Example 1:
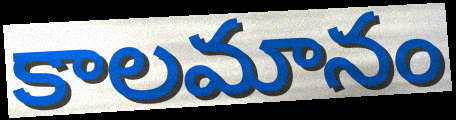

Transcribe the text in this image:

కాలమానం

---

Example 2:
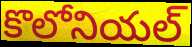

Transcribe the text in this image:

కొలోనియల్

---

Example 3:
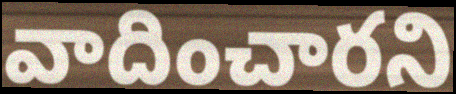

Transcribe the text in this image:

వాదించారని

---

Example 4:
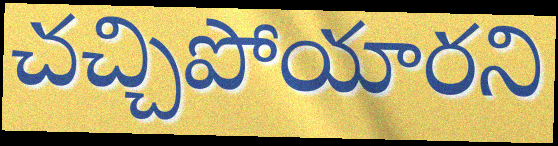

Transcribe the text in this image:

చచ్చిపోయారని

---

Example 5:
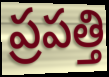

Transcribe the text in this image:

ప్రపత్తి